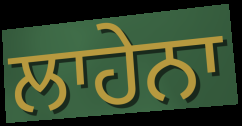
ਲਾਹੇਨਾ